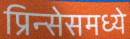
प्रिन्सेसमध्ये